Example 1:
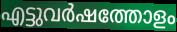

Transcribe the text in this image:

എട്ടുവർഷത്തോളം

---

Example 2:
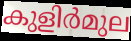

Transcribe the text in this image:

കുളിർമുല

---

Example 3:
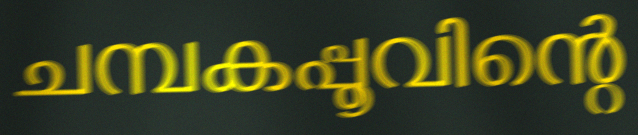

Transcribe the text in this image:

ചമ്പകപ്പൂവിന്റെ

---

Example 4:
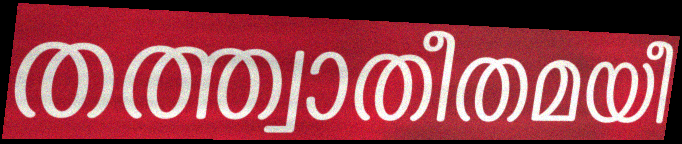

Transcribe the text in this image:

തത്ത്വാതീതമയീ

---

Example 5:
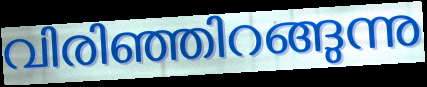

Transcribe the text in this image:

വിരിഞ്ഞിറങ്ങുന്നു